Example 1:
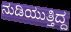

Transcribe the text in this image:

ನುಡಿಯುತ್ತಿದ್ದ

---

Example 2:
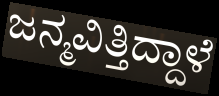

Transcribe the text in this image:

ಜನ್ಮವಿತ್ತಿದ್ದಾಳೆ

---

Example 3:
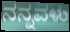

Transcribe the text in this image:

ನನ್ನವಳು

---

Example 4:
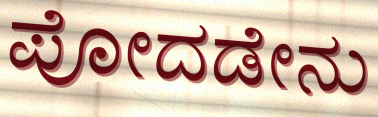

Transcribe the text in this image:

ಪೋದಡೇನು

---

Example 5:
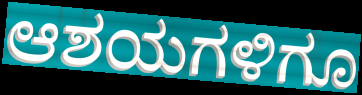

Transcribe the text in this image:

ಆಶಯಗಳಿಗೂ